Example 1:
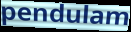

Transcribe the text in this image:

pendulam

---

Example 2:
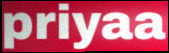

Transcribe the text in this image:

priyaa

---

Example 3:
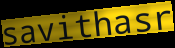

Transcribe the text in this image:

savithasr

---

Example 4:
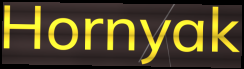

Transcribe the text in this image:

Hornyak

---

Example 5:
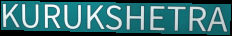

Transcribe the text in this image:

KURUKSHETRA